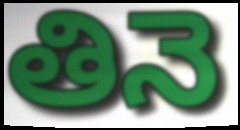
తినె